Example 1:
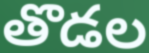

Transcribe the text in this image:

తొడల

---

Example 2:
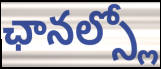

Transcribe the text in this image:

ఛానల్స్లో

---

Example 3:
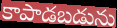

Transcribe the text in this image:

కాపాడబడును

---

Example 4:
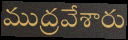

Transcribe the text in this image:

ముద్రవేశారు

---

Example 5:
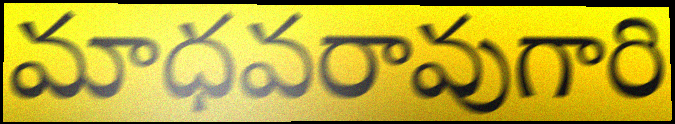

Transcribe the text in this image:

మాధవరావుగారి